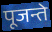
पूजन्ते